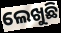
ଲେଖୁଛି